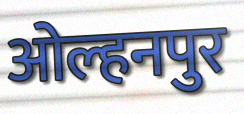
ओल्हनपुर